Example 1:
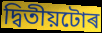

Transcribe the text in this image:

দ্বিতীয়টোৰ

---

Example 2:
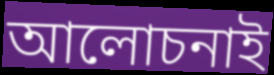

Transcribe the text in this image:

আলোচনাই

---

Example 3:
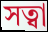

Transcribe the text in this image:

সত্বা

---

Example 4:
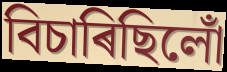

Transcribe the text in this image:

বিচাৰিছিলোঁ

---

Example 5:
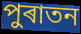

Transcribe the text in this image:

পুৰাতন